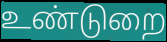
உண்டுறை